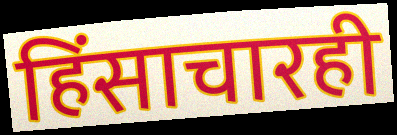
हिंसाचारही